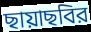
ছায়াছবির